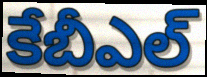
కేబీఎల్